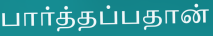
பார்த்தப்பதான்